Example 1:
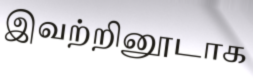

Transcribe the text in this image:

இவற்றினூடாக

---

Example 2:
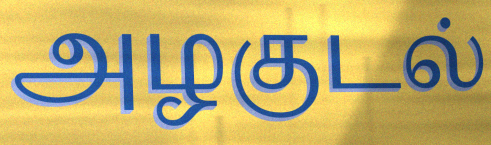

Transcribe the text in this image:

அழகுடல்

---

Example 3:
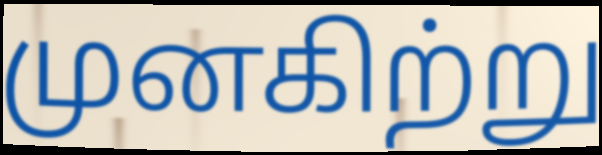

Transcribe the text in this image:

முனகிற்று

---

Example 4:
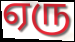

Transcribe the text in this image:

ஏரு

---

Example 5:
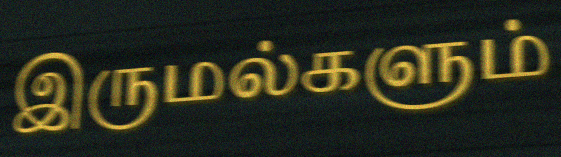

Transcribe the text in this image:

இருமல்களும்